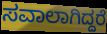
ಸವಾಲಾಗಿದ್ದರೆ